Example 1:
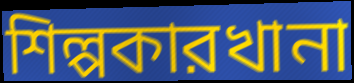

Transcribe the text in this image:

শিল্পকারখানা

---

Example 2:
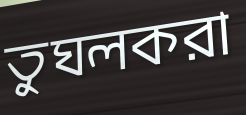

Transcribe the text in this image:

তুঘলকরা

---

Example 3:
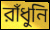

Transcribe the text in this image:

রাঁধুনি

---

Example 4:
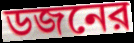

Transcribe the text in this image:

ডজনের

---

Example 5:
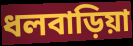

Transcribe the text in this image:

ধলবাড়িয়া